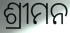
ଶ୍ରୀମନ